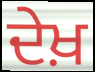
ਦੇਖ਼